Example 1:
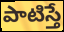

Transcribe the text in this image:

పాటిస్తే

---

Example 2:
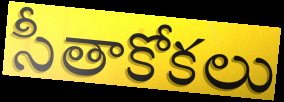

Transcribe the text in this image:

సీతాకోకలు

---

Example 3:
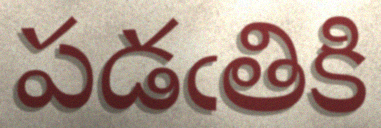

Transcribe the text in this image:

పడఁతికి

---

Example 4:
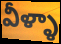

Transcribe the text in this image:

వీళ్ళా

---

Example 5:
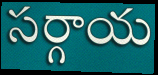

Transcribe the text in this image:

సర్గాయ